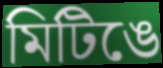
মিটিঙে